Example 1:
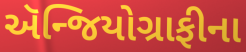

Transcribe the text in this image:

ઍન્જિયોગ્રાફીના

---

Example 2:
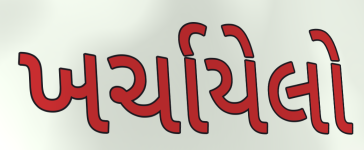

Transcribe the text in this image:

ખર્ચાયેલો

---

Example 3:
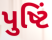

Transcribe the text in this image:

પુષ્ટિં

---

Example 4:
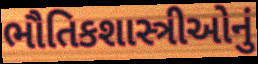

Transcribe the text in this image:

ભૌતિકશાસ્ત્રીઓનું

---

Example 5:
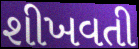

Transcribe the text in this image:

શીખવતી